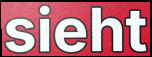
sieht